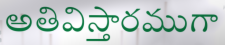
అతివిస్తారముగా